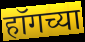
हॉगच्या